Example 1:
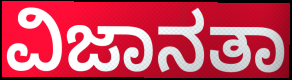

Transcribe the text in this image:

ವಿಜಾನತಾ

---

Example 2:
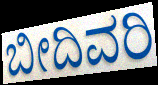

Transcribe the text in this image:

ಬೀದಿವರಿ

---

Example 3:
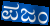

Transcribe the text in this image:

ಪಜಂ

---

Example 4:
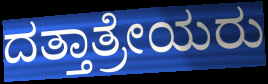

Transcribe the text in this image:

ದತ್ತಾತ್ರೇಯರು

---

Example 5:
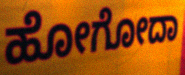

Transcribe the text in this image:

ಹೋಗೋದಾ